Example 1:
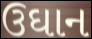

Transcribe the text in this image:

ઉઘાન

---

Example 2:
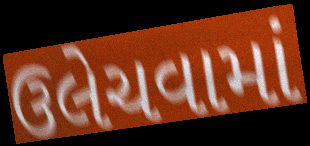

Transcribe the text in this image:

ઉલેચવામાં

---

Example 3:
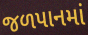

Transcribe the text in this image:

જળપાનમાં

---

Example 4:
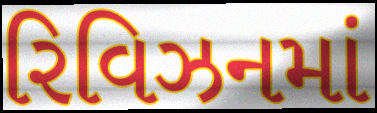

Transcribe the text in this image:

રિવિઝનમાં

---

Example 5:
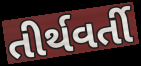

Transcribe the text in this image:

તીર્થવર્તી